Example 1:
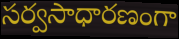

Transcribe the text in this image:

సర్వసాధారణంగా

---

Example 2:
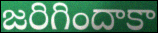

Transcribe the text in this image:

జరిగిందాకా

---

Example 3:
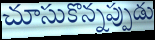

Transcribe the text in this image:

చూసుకొన్నప్పుడు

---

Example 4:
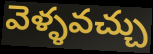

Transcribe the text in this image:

వెళ్ళవచ్చు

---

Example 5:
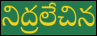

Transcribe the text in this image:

నిద్రలేచిన